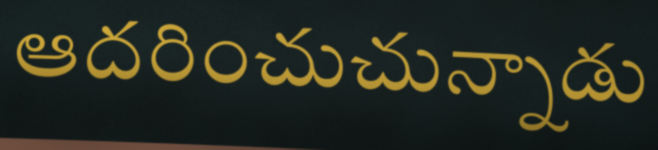
ఆదరించుచున్నాడు